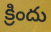
క్రిందు